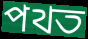
পথত